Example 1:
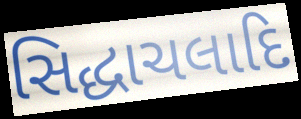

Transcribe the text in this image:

સિદ્ધાચલાદિ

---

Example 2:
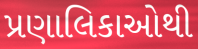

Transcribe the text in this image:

પ્રણાલિકાઓથી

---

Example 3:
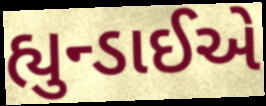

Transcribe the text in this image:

હ્યુન્ડાઈએ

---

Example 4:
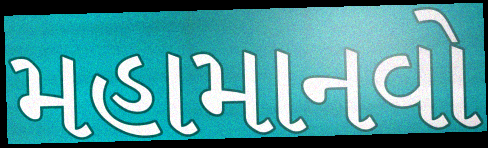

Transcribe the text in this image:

મહામાનવો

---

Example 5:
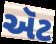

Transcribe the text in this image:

ઍટ